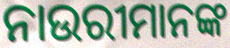
ନାଉରୀମାନଙ୍କ